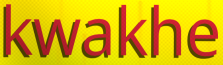
kwakhe